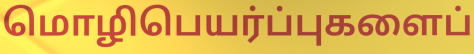
மொழிபெயர்ப்புகளைப்